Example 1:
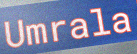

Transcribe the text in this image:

Umrala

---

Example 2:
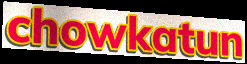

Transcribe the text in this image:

chowkatun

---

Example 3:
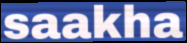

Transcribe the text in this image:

saakha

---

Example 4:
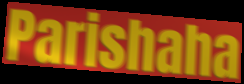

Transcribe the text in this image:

Parishaha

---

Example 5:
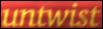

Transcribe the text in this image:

untwist